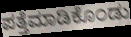
ಪತ್ತೆಮಾಡಿಕೊಂಡು